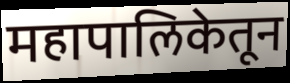
महापालिकेतून